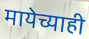
मायेच्याही